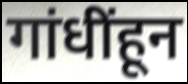
गांधींहून